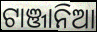
ଟାଞ୍ଜାନିଆ